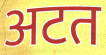
अटत